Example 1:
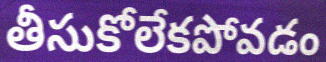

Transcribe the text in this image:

తీసుకోలేకపోవడం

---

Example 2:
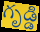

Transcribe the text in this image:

గృడ్డి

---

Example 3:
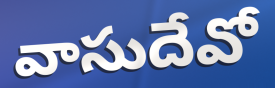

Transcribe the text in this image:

వాసుదేవో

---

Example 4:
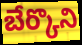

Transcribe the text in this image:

బేర్కొని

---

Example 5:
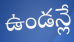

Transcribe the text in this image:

ఉండన్లే